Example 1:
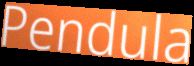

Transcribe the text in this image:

Pendula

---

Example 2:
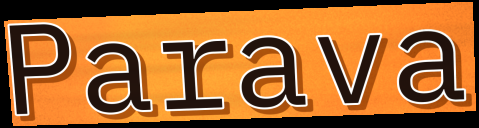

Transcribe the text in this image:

Parava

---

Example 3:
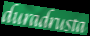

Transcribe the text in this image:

duradrusta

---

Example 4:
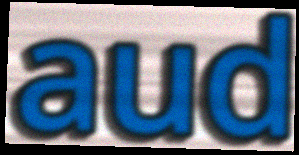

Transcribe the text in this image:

aud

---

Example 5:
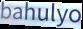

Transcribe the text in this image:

bahulyo